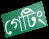
গেটিং